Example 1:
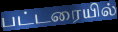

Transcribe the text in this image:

பட்டரையில்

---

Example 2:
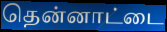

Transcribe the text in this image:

தென்னாட்டை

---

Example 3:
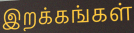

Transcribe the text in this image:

இறக்கங்கள்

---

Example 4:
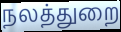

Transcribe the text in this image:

நலத்துறை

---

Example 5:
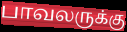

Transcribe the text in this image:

பாவலருக்கு